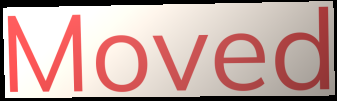
Moved